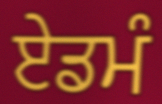
ਏਡਮੰ